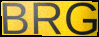
BRG